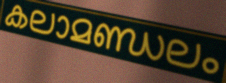
കലാമണ്ഡലം